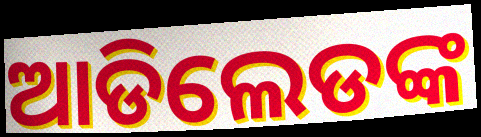
ଆଡିଲେଡଙ୍କ